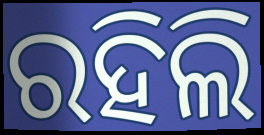
ରହିଲି